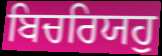
ਬਿਚਰਿਯਹੁ